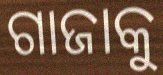
ଗାଜାକୁ